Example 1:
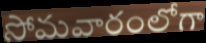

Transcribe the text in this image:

సోమవారంలోగా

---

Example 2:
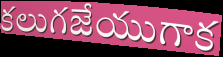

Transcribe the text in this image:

కలుగజేయుగాక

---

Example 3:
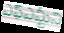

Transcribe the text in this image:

ఎఫ్ఎమ్టీని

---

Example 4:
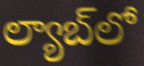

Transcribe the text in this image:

ల్యాబ్‌లో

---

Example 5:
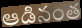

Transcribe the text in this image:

ఆడినంత